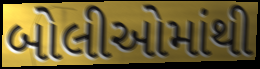
બોલીઓમાંથી